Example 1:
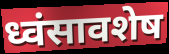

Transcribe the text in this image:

ध्वंसावशेष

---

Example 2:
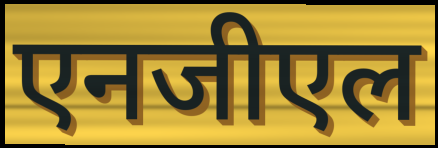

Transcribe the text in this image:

एनजीएल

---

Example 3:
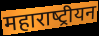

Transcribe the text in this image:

महाराष्ट्रीयन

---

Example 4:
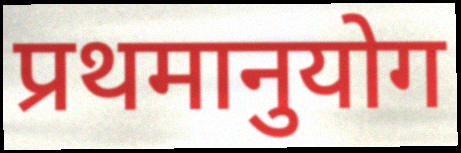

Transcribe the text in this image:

प्रथमानुयोग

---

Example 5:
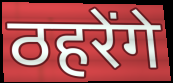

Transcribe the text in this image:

ठहरेंगे